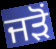
ਜੜੋਂ